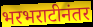
भरभराटीनंतर